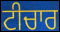
ਟੀਚਾਰ